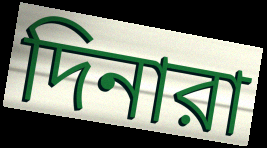
দিনারা